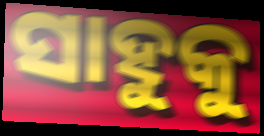
ସାହୁକୁ